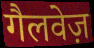
गैलवेज़